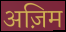
अज़िम